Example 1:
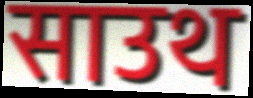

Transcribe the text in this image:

साउथ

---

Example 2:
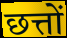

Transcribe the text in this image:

छत्तों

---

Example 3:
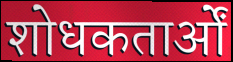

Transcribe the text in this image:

शोधकतार्ओं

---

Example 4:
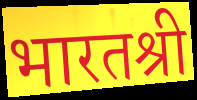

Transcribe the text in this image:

भारतश्री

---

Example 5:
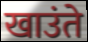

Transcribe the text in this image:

खाउंते